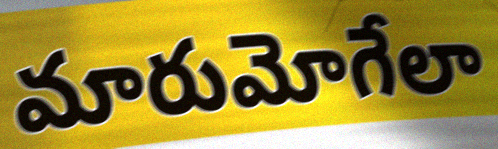
మారుమోగేలా